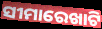
ସୀମାରେଖାଟି